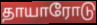
தாயாரோடு